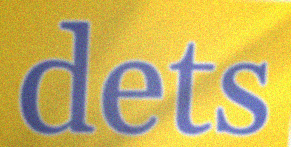
dets